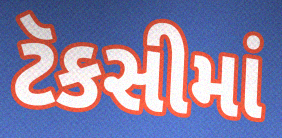
ટૅકસીમાં